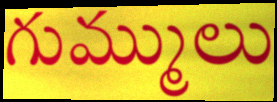
గుమ్ములు